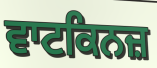
ਵਾਟਕਿਨਜ਼